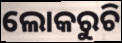
ଲୋକରୁଚି